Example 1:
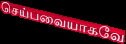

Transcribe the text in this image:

செய்பவையாகவே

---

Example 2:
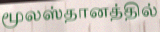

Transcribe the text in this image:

மூலஸ்தானத்தில்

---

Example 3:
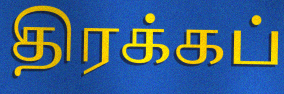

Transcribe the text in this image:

திரக்கப்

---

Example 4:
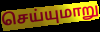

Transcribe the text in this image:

செய்யுமாறு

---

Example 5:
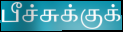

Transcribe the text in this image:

பீச்சுக்குக்